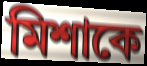
মিশাকে